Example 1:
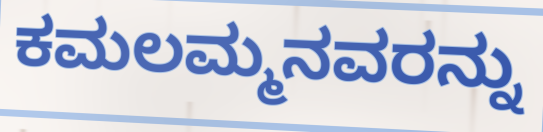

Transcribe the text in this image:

ಕಮಲಮ್ಮನವರನ್ನು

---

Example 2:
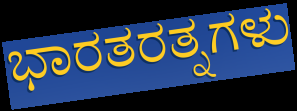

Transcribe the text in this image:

ಭಾರತರತ್ನಗಳು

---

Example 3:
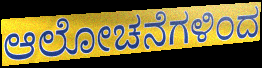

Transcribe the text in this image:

ಆಲೋಚನೆಗಳಿಂದ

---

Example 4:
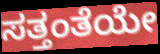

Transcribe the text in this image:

ಸತ್ತಂತೆಯೇ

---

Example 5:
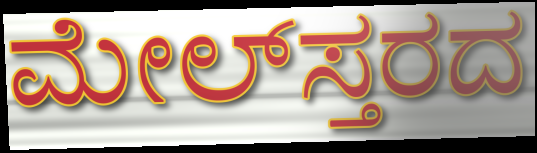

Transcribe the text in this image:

ಮೇಲ್‌ಸ್ತರದ